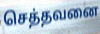
செத்தவனை